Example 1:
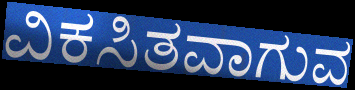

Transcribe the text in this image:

ವಿಕಸಿತವಾಗುವ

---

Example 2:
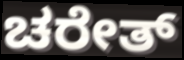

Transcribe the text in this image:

ಚರೇತ್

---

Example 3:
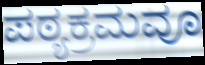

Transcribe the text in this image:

ಪಠ್ಯಕ್ರಮವೂ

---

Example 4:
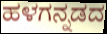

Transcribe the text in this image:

ಹಳಗನ್ನಡದ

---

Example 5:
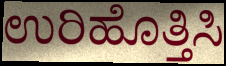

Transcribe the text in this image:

ಉರಿಹೊತ್ತಿಸಿ